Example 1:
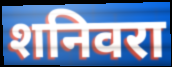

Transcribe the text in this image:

शनिवरा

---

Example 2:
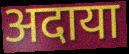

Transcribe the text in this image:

अदाया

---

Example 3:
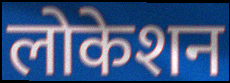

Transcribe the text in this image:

लोकेशन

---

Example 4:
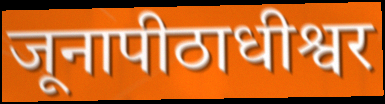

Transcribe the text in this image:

जूनापीठाधीश्वर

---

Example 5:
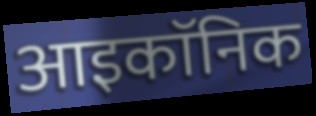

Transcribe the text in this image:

आइकॉनिक